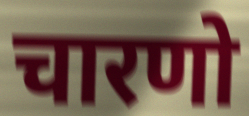
चारणो